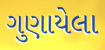
ગુણાયેલા